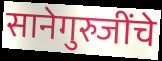
सानेगुरुजींचे